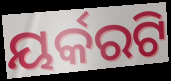
ୟର୍କରଟି